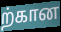
ற்கான